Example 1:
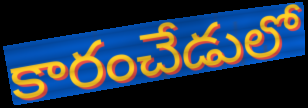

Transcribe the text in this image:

కారంచేడులో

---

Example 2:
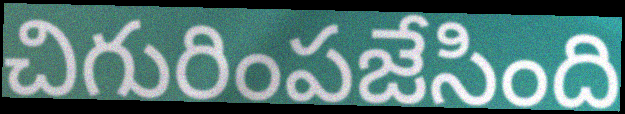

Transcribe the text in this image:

చిగురింపజేసింది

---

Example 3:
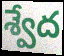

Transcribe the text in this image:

శ్వేద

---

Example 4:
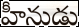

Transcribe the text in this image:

హీనుడు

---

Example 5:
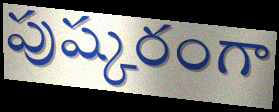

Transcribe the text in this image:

పుష్కరంగా